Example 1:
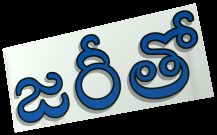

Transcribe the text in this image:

జరీతో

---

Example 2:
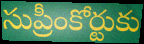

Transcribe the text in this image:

సుప్రీంకోర్టుకు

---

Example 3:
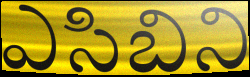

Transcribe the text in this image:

ఎసిబిని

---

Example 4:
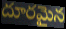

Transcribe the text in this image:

దూరమైన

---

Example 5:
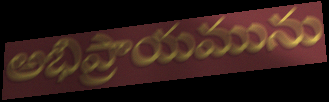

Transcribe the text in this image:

అభిప్రాయమును